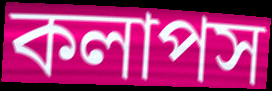
কলাপস